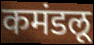
कमंडलू